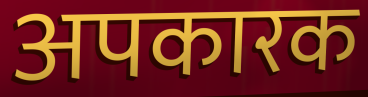
अपकारक